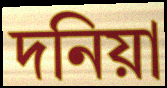
দনিয়া